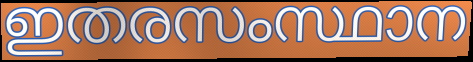
ഇതരസംസ്ഥാന